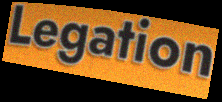
Legation